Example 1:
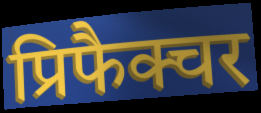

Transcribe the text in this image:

प्रिफैक्चर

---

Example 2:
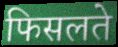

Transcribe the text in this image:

फिसलते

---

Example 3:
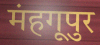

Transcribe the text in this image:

मंहगूपुर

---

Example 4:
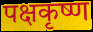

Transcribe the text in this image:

पक्षकृष्ण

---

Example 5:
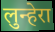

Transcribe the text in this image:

लुन्हेरा